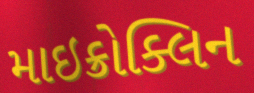
માઇક્રોક્લિન